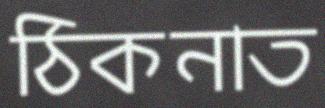
ঠিকনাত